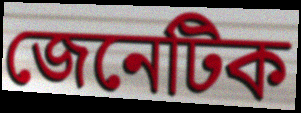
জেনেটিক